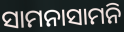
ସାମନାସାମନି